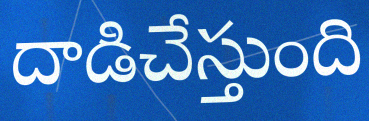
దాడిచేస్తుంది